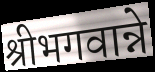
श्रीभगवान्ने